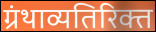
ग्रंथाव्यतिरिक्त